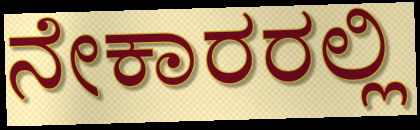
ನೇಕಾರರಲ್ಲಿ